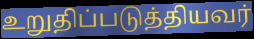
உறுதிப்படுத்தியவர்